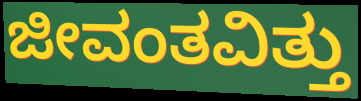
ಜೀವಂತವಿತ್ತು